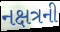
નક્ષત્રની